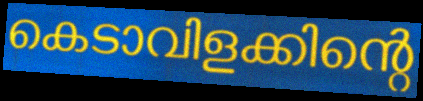
കെടാവിളക്കിന്റെ